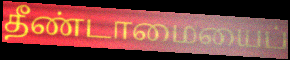
தீண்டாமையைப்